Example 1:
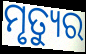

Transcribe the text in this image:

ମୃତ୍ୟୁର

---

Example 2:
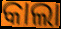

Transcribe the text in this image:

କାଲା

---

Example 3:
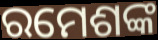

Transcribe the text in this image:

ରମେଶଙ୍କ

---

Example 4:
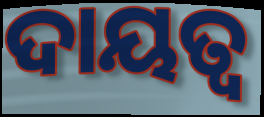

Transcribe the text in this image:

ଦାୟତ୍ବ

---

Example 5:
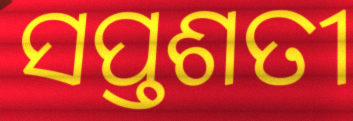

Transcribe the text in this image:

ସପ୍ତଶତୀ